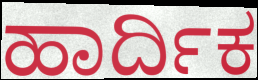
ಹಾರ್ದಿಕ